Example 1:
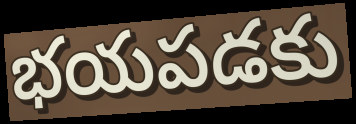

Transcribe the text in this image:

భయపడకు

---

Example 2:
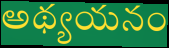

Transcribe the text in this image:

అథ్యయనం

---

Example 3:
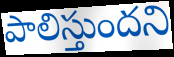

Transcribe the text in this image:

పాలిస్తుందని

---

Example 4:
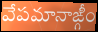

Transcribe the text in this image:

వేపమానాఙ్గీం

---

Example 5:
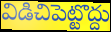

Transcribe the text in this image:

విడిచిపెట్టొద్దు